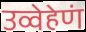
उव्वेहेणं